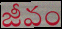
జీవం